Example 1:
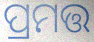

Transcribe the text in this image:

ପ୍ରମତ୍ତ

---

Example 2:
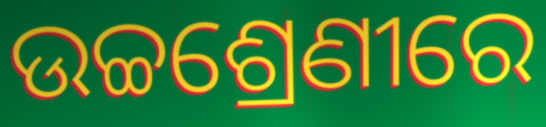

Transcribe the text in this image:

ଉଚ୍ଚଶ୍ରେଣୀରେ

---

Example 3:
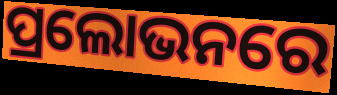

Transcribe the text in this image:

ପ୍ରଲୋଭନରେ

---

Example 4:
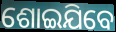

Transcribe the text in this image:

ଶୋଇଯିବେ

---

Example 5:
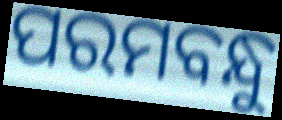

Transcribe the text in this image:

ପରମବନ୍ଧୁ